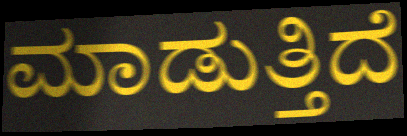
ಮಾಡುತ್ತಿದೆ